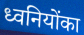
ध्वनियोंका